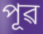
পূৱ